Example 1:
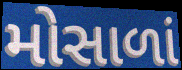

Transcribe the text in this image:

મોસાળાં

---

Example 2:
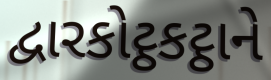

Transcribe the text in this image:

દ્વારકોટ્ઠકટ્ઠાને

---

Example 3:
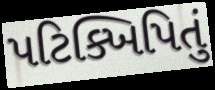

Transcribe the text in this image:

પટિક્ખિપિતું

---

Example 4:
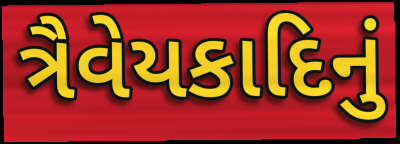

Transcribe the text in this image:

ત્રૈવેયકાદિનું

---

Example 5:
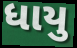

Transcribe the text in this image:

ધાયુ